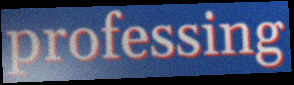
professing